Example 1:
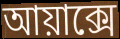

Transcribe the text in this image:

আয়াক্সে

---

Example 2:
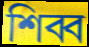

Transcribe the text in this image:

শিব্ব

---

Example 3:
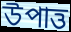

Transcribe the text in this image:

উপাত্ত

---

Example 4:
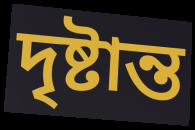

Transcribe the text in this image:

দৃষ্টান্ত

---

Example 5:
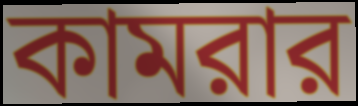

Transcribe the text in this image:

কামরার